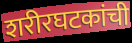
शरीरघटकांची